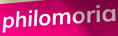
philomoria